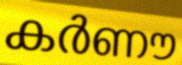
കർണൗ